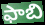
ఫాబి